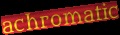
achromatic